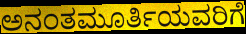
ಅನಂತಮೂರ್ತಿಯವರಿಗೆ